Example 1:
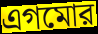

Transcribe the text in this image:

এগমোর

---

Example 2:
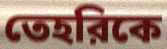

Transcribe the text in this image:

তেহরিকে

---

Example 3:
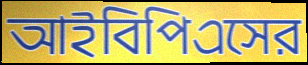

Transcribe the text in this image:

আইবিপিএসের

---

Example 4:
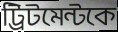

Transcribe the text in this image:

ট্রিটমেন্টকে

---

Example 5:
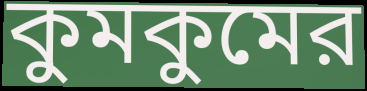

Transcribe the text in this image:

কুমকুমের